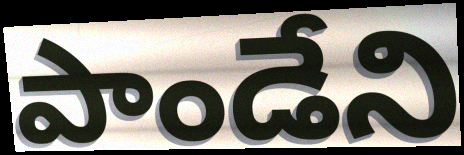
పాండేని